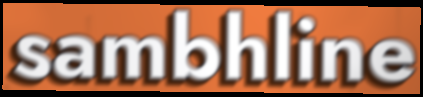
sambhline